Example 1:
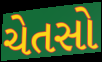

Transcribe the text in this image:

ચેતસો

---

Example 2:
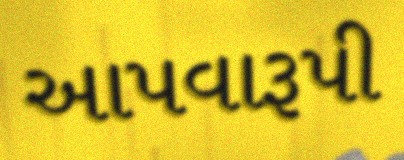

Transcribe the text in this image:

આપવારૂપી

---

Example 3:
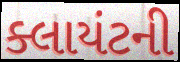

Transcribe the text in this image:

ક્લાયંટની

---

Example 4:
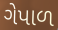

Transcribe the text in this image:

ગેપાળ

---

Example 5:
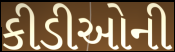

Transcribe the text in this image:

કીડીઓની